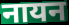
नायन